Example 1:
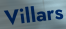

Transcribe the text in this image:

Villars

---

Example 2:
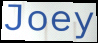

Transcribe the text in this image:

Joey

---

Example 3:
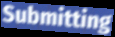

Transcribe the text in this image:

Submitting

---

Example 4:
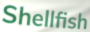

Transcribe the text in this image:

Shellfish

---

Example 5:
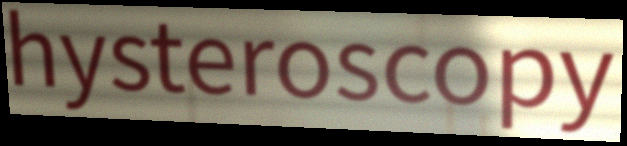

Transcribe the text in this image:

hysteroscopy